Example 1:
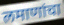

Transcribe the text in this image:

लमाणांचा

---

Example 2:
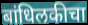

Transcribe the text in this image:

बांधिलकीचा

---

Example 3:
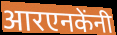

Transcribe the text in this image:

आरएनकेंनी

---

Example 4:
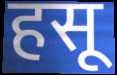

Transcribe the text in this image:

हसू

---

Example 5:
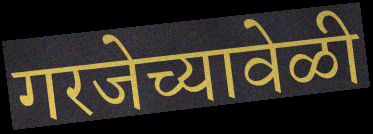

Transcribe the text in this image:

गरजेच्यावेळी